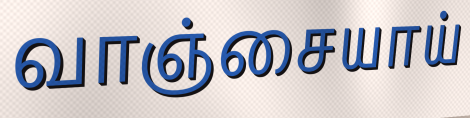
வாஞ்சையாய்